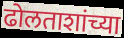
ढोलताशांच्या